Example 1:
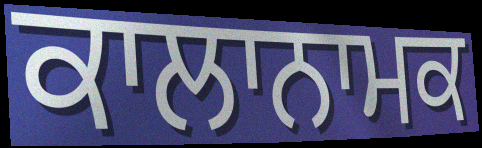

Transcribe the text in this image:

ਕਾਲਾਨਾਮਕ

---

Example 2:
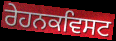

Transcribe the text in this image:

ਰੇਹਨਕਵਿਸਟ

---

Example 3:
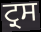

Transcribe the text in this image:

ਟ੍ਰਸ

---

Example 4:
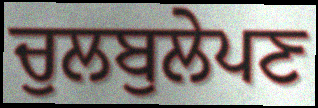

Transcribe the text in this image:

ਚੁਲਬੁਲੇਪਣ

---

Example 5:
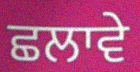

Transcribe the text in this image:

ਛਲਾਵੇ